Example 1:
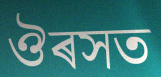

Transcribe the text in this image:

ঔৰসত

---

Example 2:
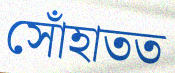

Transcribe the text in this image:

সোঁহাতত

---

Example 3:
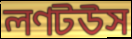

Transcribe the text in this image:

লণটউস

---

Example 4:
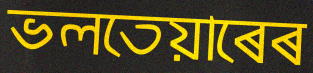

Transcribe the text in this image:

ভলতেয়াৰেৰ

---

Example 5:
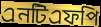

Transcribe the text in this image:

এনটিএফপি